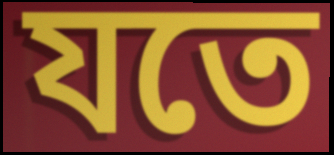
যতে